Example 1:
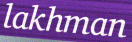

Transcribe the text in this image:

lakhman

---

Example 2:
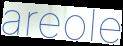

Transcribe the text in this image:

areole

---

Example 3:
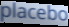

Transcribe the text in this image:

placebo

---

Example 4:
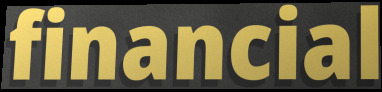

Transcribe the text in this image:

financial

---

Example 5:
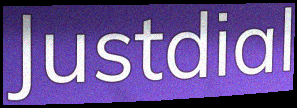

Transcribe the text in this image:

Justdial